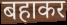
बहाकर